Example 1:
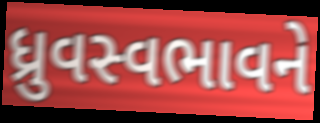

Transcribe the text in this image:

ધ્રુવસ્વભાવને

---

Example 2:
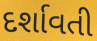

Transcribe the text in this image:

દર્શાવતી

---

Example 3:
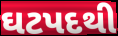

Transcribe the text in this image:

ઘટપદથી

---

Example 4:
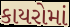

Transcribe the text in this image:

કાયરોમાં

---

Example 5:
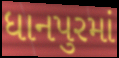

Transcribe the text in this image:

ધાનપુરમાં